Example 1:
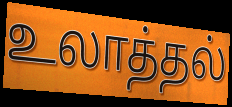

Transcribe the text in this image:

உலாத்தல்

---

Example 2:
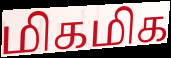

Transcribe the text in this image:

மிகமிக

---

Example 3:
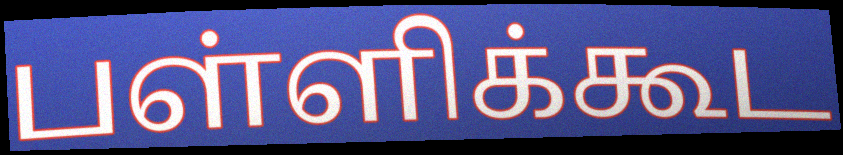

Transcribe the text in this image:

பள்ளிக்கூட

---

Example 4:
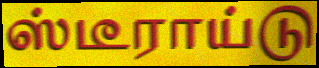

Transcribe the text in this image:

ஸ்டீராய்டு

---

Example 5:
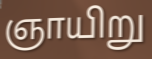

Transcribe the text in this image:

ஞாயிறு